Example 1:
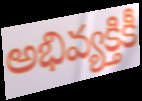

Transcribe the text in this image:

అభివ్యక్తికీ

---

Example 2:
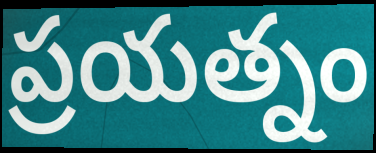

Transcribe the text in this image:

ప్రయత్నం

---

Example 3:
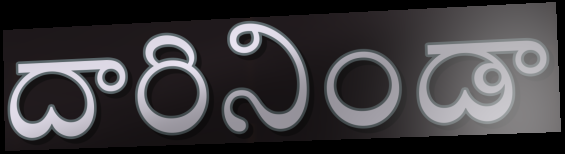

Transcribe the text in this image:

దారినిండా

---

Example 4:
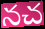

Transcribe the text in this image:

నచ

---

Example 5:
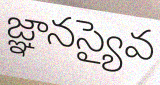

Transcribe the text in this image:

జ్ఞానస్యైవ